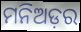
ମନିଅଡ଼ର